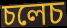
চলেচ